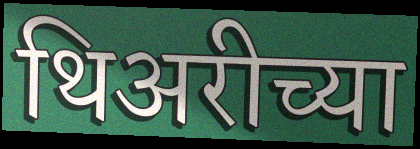
थिअरीच्या